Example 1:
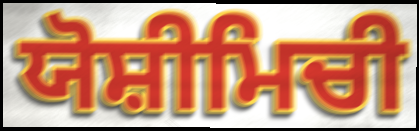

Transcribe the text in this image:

ਯੋਸ਼ੀਮਿਚੀ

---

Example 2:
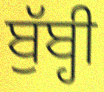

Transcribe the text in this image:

ਬੁੱਬ੍ਹੀ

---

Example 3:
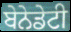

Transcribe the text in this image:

ਬੇਨੇਡੇਟੀ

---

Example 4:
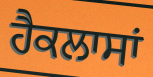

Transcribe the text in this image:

ਹੈਕਲਾਸਾਂ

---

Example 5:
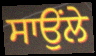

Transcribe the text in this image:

ਸਾਉਂਲੇ